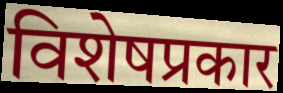
विशेषप्रकार